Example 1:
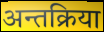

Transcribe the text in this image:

अन्तक्रिया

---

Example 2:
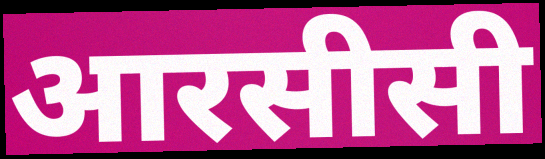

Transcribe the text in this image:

आरसीसी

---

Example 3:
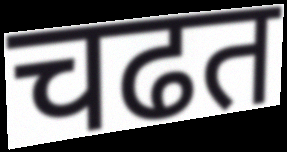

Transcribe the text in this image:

चढत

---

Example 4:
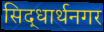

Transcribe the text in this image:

सिद्धार्थनगर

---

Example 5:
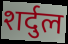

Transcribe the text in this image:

शर्दुल